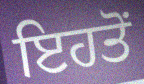
ਇਹਤੋਂ